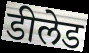
डीलेड